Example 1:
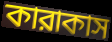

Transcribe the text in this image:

কারাকাস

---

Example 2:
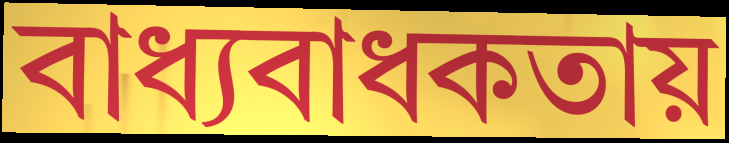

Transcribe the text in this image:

বাধ্যবাধকতায়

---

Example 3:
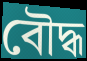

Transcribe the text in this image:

বৌদ্ধ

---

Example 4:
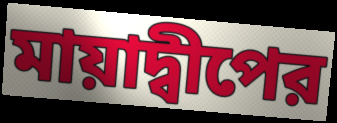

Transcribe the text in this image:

মায়াদ্বীপের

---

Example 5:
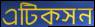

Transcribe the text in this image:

এটিকসন